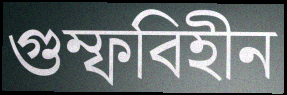
গুম্ফবিহীন